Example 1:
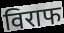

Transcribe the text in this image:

विराफ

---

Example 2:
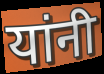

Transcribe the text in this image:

यांनी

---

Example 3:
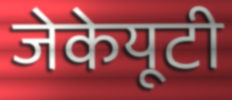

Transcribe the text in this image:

जेकेयूटी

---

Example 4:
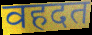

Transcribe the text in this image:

वहदत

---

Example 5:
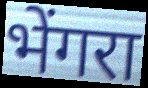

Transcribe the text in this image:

भेंगरा